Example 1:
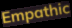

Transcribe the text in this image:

Empathic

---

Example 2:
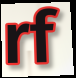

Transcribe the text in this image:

rf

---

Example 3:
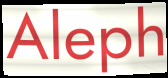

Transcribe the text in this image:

Aleph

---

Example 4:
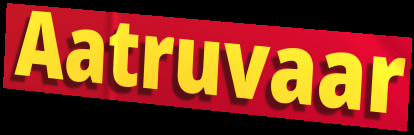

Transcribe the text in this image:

Aatruvaar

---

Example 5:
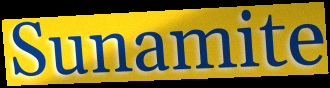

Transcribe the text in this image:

Sunamite